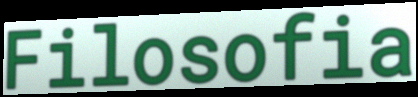
Filosofia